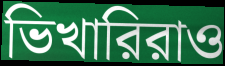
ভিখারিরাও